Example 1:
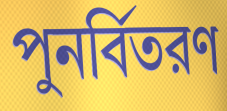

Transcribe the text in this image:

পুনর্বিতরণ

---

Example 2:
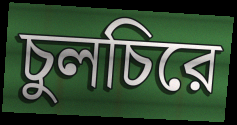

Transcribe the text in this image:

চুলচিরে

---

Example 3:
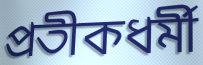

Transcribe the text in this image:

প্রতীকধর্মী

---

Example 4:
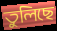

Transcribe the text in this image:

তুলিছে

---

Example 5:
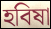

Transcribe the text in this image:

হবিষা